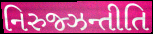
નિરુજ્ઝન્તીતિ